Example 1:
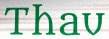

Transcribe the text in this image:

Thau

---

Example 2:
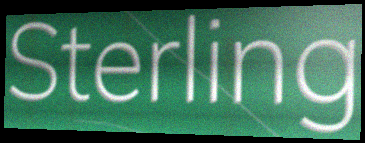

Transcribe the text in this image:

Sterling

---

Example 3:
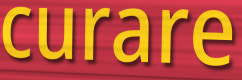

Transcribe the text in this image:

curare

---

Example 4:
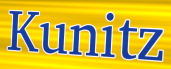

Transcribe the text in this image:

Kunitz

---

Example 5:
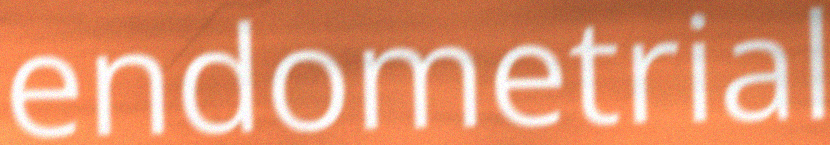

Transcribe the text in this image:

endometrial